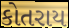
કોતરાય